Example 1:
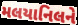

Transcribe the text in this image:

મલયાનિલને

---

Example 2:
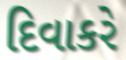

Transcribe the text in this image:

દિવાકરે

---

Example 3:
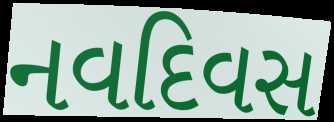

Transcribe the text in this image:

નવદિવસ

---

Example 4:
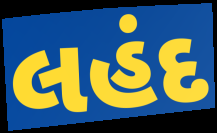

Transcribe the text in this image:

લહંદ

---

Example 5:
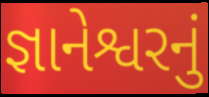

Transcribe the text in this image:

જ્ઞાનેશ્વરનું